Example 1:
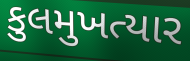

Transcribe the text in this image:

કુલમુખત્યાર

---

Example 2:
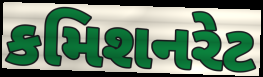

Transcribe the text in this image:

કમિશનરેટ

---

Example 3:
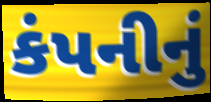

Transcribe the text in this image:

કંપનીનું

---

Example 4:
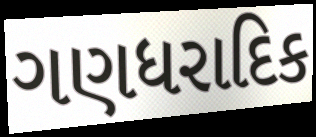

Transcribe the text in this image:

ગણધરાદિક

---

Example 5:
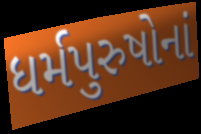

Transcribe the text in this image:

ધર્મપુરુષોનાં